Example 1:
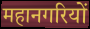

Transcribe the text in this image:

महानगरियों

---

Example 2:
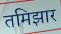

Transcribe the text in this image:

तमिझार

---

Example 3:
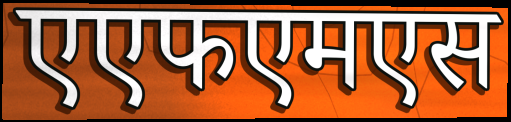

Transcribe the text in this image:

एएफएमएस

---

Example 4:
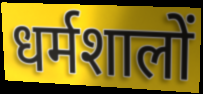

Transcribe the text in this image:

धर्मशालों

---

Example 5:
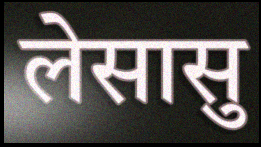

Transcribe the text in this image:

लेसासु